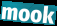
mook